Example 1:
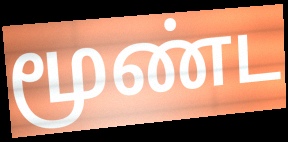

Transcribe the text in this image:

மூண்ட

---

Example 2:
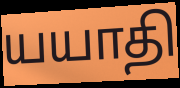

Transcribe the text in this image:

யயாதி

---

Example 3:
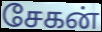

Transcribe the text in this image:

சேகன்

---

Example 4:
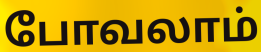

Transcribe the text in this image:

போவலாம்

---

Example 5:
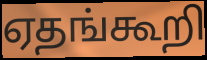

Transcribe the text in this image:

ஏதங்கூறி